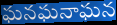
ఘనఘనాఘన